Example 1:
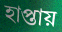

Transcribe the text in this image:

হাপ্তায়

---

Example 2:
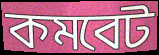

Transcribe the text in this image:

কমবেট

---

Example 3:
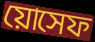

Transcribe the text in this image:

য়োসেফ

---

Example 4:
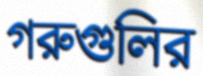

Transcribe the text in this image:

গরুগুলির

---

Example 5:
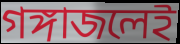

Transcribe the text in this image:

গঙ্গাজলেই